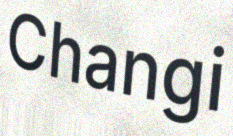
Changi